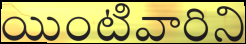
యింటివారిని